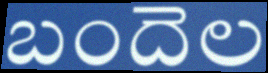
బందెల